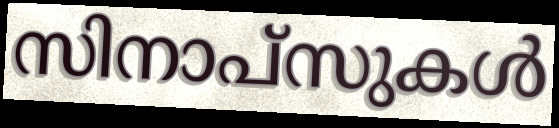
സിനാപ്സുകൾ